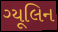
ગ્યૂલિન